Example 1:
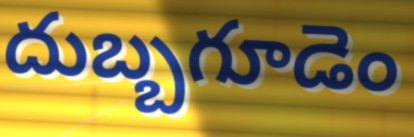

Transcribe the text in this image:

దుబ్బగూడెం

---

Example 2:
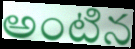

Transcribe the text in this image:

అంటిన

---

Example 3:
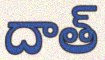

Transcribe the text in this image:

దాత్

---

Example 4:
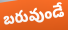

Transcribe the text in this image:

బరువుండే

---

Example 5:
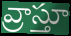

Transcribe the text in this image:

వ్రాస్తూ